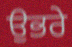
ਉਭਰੇ